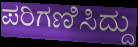
ಪರಿಗಣಿಸಿದ್ದು